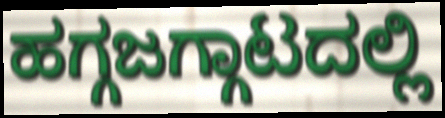
ಹಗ್ಗಜಗ್ಗಾಟದಲ್ಲಿ